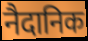
नैदानिक